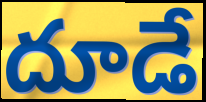
దూడే